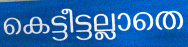
കെട്ടീട്ടല്ലാതെ